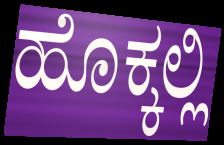
ಹೊಕ್ಕಲ್ಲಿ